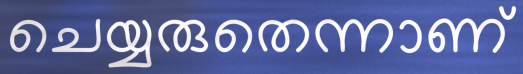
ചെയ്യരുതെന്നാണ്